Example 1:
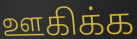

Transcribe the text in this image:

ஊகிக்க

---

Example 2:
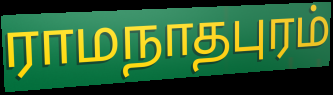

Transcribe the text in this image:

ராமநாதபுரம்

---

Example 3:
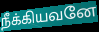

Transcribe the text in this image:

நீக்கியவனே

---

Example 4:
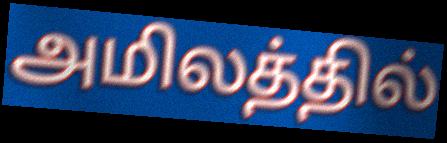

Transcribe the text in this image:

அமிலத்தில்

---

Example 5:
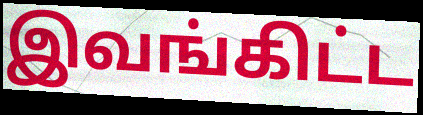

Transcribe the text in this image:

இவங்கிட்ட